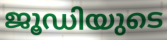
ജൂഡിയുടെ